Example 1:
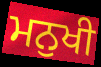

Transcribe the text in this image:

ਮਨੁਖੀ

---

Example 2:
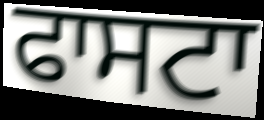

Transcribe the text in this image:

ਫਾਸਟਾ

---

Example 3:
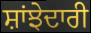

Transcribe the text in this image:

ਸ਼ਾਂਝੇਦਾਰੀ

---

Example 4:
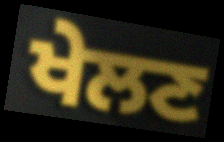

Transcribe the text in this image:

ਖੇਲਣ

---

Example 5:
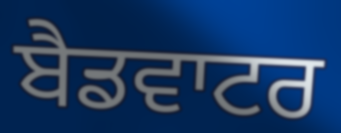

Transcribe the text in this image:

ਬੈਡਵਾਟਰ